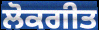
ਲੋਕਗੀਤ